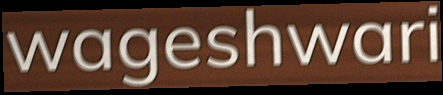
wageshwari